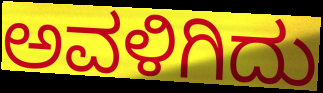
ಅವಳಿಗಿದು